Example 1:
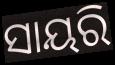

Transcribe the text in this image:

ସାୟରି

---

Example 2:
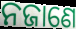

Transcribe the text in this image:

ନଜାଣେ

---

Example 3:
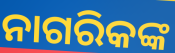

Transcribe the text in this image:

ନାଗରିକଙ୍କ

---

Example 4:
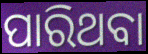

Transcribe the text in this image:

ପାରିଥବା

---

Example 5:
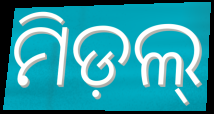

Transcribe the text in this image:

ମିଡ଼ଲ୍